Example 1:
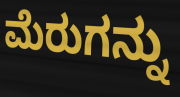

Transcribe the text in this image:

ಮೆರುಗನ್ನು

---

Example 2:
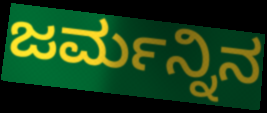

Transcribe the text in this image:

ಜರ್ಮನ್ನಿನ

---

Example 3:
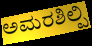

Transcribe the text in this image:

ಅಮರಶಿಲ್ಪಿ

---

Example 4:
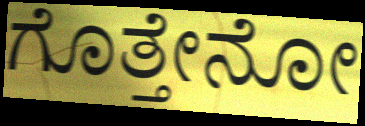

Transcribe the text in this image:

ಗೊತ್ತೇನೋ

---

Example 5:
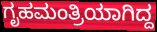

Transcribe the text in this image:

ಗೃಹಮಂತ್ರಿಯಾಗಿದ್ದ